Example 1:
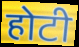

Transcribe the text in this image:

होटी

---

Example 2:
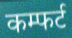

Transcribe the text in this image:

कम्फर्ट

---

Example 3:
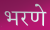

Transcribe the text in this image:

भरणे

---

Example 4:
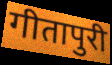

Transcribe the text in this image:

गीतापुरी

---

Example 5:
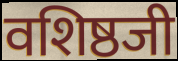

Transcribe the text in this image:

वशिष्ठजी